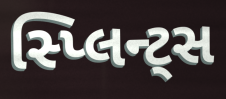
સ્પ્લિન્ટ્સ